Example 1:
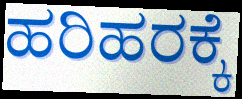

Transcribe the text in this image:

ಹರಿಹರಕ್ಕೆ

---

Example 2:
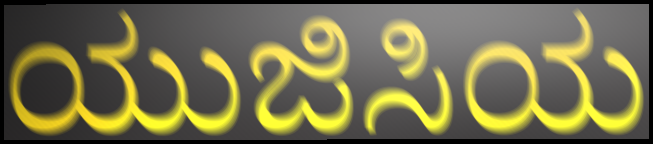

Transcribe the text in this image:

ಯುಜಿಸಿಯ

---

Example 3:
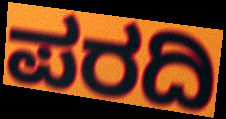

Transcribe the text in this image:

ಪರದಿ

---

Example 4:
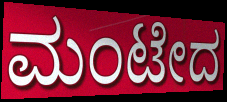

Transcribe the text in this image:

ಮಂಟೇದ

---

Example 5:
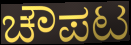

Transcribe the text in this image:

ಚೌಪಟ